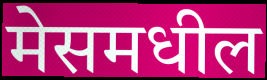
मेसमधील